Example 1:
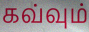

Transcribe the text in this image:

கவ்வும்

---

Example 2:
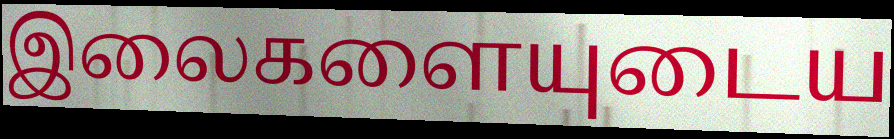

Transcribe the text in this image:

இலைகளையுடைய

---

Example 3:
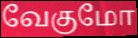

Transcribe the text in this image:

வேகுமோ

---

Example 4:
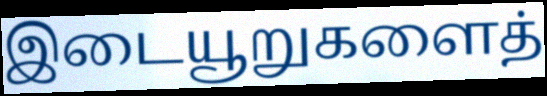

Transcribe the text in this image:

இடையூறுகளைத்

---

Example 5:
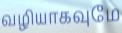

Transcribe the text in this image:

வழியாகவுமே